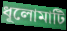
ধূলোমাটি